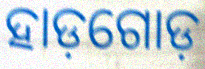
ହାଡ଼ଗୋଡ଼